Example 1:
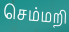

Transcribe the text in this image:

செம்மறி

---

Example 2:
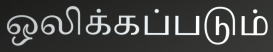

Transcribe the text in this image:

ஒலிக்கப்படும்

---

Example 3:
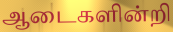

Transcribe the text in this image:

ஆடைகளின்றி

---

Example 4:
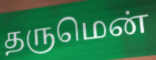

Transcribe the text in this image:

தருமென்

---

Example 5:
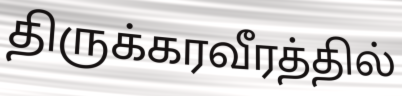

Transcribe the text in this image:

திருக்கரவீரத்தில்